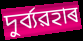
দুৰ্ব্যৱহাৰ